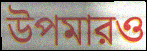
উপমারও